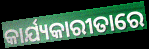
କାର୍ଯ୍ୟକାରୀତାରେ